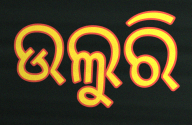
ଉଲୁରି